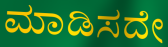
ಮಾಡಿಸದೇ